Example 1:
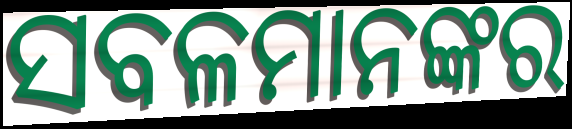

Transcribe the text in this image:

ସବଳମାନଙ୍କର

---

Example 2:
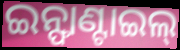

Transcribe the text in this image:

ଇନ୍ଫାଣ୍ଟାଇଲ୍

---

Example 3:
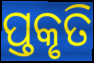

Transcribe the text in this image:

ପ୍ତକୃତି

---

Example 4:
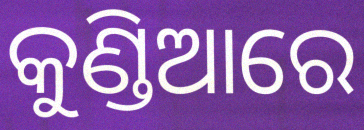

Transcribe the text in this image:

କୁଣ୍ଡିଆରେ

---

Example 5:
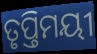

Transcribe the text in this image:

ତୃପ୍ତିମୟୀ